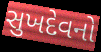
સુખદેવનો